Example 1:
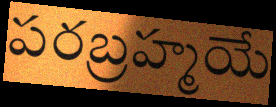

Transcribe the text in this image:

పరబ్రహ్మయే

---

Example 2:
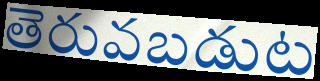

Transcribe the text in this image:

తెరువబడుట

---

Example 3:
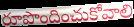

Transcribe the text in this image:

రూపొందించుకోవాలి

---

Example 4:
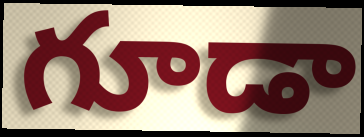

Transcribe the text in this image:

గూడా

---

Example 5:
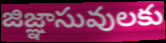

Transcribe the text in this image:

జిజ్ఞాసువులకు